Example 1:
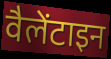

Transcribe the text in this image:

वैलेंटाइन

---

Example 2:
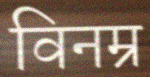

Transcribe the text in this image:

विनम्र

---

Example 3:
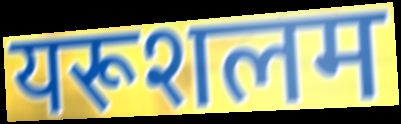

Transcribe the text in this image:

यरूशलम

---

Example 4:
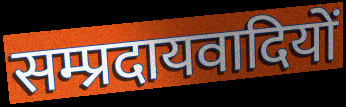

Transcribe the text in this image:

सम्प्रदायवादियों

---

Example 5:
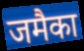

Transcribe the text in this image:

जमैका